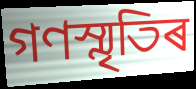
গণস্মৃতিৰ